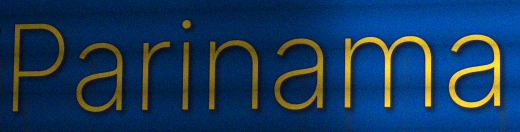
Parinama